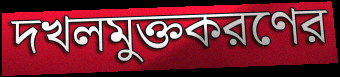
দখলমুক্তকরণের